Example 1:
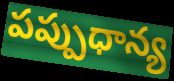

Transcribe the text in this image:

పప్పుధాన్య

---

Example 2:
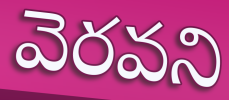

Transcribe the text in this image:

వెరవని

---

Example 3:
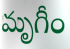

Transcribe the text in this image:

మృగీం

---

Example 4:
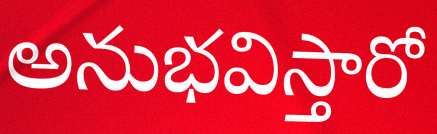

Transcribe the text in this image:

అనుభవిస్తారో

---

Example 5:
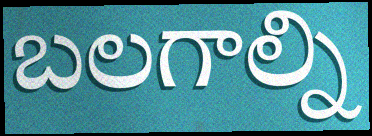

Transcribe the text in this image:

బలగాల్ని